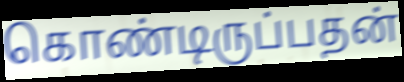
கொண்டிருப்பதன்